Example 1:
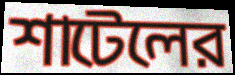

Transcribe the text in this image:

শাটেলের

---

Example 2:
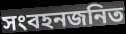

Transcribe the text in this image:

সংবহনজনিত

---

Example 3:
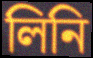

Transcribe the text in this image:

লিনি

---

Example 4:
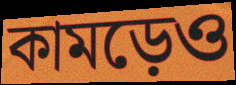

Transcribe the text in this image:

কামড়েও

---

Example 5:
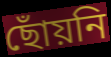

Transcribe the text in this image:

ছোঁয়নি